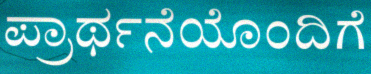
ಪ್ರಾರ್ಥನೆಯೊಂದಿಗೆ